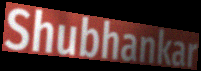
Shubhankar